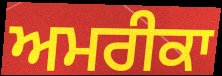
ਅਮਰੀਕਾ